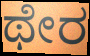
ಥೇರ